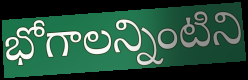
భోగాలన్నింటిని